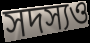
সদস্যও